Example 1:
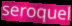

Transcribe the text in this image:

seroquel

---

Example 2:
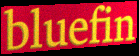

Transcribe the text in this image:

bluefin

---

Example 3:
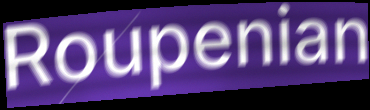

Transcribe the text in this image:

Roupenian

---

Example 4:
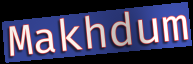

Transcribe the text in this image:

Makhdum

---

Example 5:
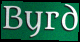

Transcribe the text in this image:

Byrd